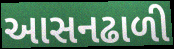
આસનઢાળી